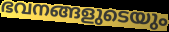
ഭവനങ്ങളുടെയും